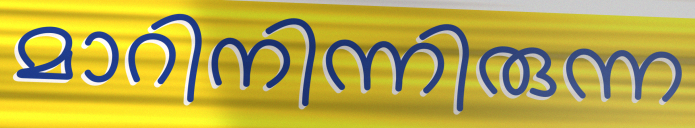
മാറിനിന്നിരുന്ന